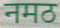
नमठ